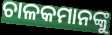
ଚାଳକମାନଙ୍କୁ